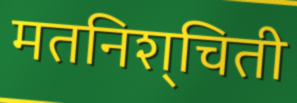
मतनिश्चिती